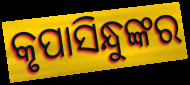
କୃପାସିନ୍ଧୁଙ୍କର